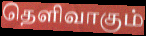
தெளிவாகும்